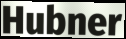
Hubner